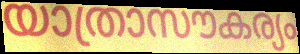
യാത്രാസൗകര്യം